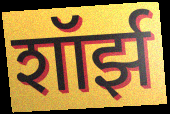
शॉर्झ